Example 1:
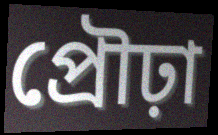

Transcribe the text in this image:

প্রৌঢ়া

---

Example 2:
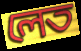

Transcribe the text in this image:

লেত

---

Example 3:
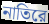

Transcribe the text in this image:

নাতিরে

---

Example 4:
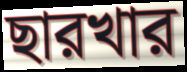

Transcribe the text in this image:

ছারখার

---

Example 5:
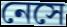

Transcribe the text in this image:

নেসে